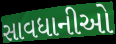
સાવધાનીઓ